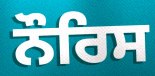
ਨੌਰਿਸ